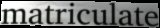
matriculate